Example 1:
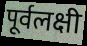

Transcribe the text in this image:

पूर्वलक्षी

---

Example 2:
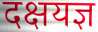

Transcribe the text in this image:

दक्षयज्ञ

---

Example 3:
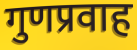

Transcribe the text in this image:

गुणप्रवाह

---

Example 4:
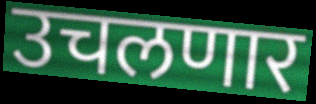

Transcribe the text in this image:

उचलणार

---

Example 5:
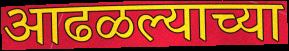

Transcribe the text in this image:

आढळल्याच्या